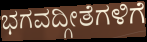
ಭಗವದ್ಗೀತೆಗಳಿಗೆ